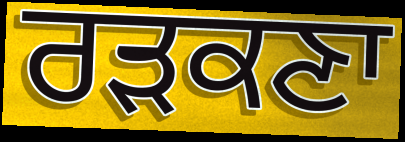
ਰੜਕਣਾ